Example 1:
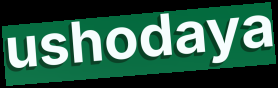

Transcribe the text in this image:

ushodaya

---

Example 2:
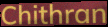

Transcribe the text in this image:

Chithran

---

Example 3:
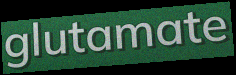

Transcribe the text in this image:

glutamate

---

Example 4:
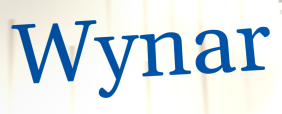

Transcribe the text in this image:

Wynar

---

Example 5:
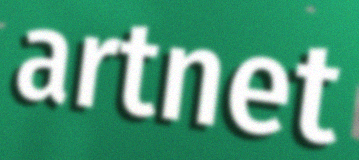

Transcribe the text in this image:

artnet